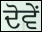
ਦੋਵੇੰ